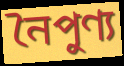
নৈপুণ্য